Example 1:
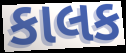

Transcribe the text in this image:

કાલક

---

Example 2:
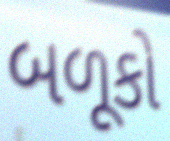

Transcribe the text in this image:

બળૂકો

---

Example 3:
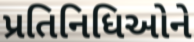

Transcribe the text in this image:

પ્રતિનિધિઓને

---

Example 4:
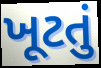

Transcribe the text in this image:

ખૂટતું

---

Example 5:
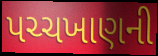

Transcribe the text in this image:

પચ્ચખાણની